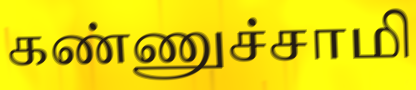
கண்ணுச்சாமி